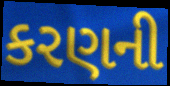
કરણની